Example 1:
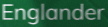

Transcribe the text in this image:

Englander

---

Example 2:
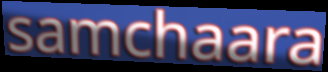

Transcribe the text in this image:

samchaara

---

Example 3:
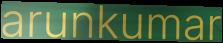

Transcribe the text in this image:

arunkumar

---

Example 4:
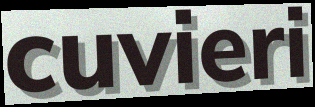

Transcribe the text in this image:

cuvieri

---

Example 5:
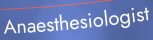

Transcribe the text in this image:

Anaesthesiologist